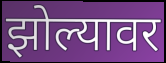
झोल्यावर